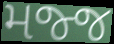
મજ્જ